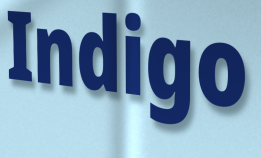
Indigo